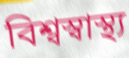
বিশ্বস্বাস্থ্য